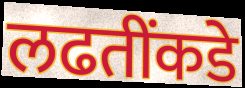
लढतींकडे